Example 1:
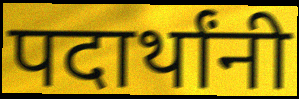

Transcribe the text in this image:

पदार्थांनी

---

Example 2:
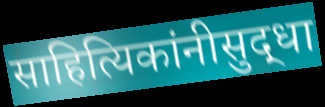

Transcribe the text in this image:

साहित्यिकांनीसुद्धा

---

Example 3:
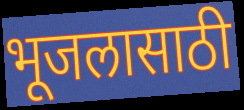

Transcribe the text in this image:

भूजलासाठी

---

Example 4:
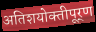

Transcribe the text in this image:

अतिशयोक्‍तीपूर्ण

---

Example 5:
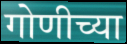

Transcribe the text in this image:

गोणीच्या